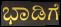
ಭಾಡಿಗೆ